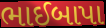
ભાઈબાપા